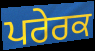
ਪਰੇਰਕ